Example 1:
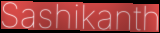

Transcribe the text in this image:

Sashikanth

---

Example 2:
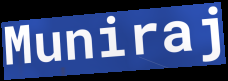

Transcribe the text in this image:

Muniraj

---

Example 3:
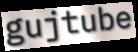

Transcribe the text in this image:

gujtube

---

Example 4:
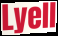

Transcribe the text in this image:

Lyell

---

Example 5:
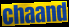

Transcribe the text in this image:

chaand